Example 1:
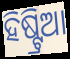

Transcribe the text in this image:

ହିଷ୍ଟ୍ରିଆ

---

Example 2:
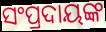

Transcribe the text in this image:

ସଂପ୍ରଦାୟଙ୍କ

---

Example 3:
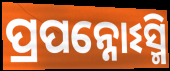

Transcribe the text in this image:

ପ୍ରପନ୍ନୋଽସ୍ମି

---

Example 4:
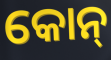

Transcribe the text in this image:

କୋନ୍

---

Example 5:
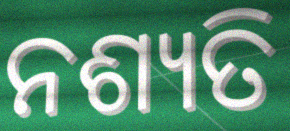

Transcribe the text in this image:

ନଶ୍ୟତି